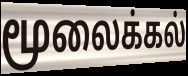
மூலைக்கல்